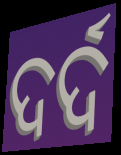
ଦର୍ଦ